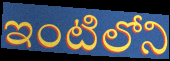
ఇంటిలోని